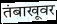
तंबाखूवर